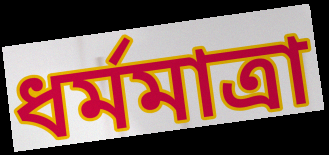
ধর্মমাত্রা